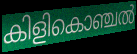
കിളികൊഞ്ചൽ